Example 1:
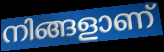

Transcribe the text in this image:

നിങ്ങളാണ്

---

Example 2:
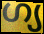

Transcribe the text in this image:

ഗ്യ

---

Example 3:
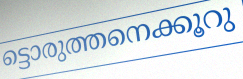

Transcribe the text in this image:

ട്ടൊരുത്തനെക്കൂറു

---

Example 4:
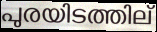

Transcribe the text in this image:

പുരയിടത്തില്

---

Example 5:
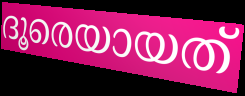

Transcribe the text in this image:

ദൂരെയായത്